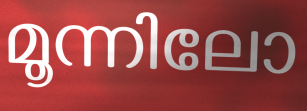
മൂന്നിലോ